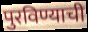
पुरविण्याची